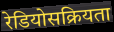
रेडियोसक्रियता